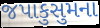
જપાકુસુમના